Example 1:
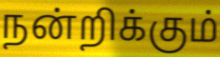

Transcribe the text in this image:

நன்றிக்கும்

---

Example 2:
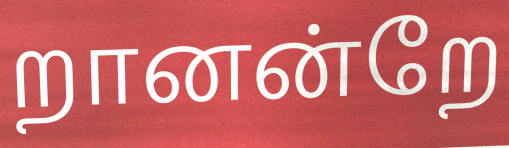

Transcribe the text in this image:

றானன்றே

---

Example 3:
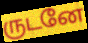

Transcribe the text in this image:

ருடனே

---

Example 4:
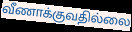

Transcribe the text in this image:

வீணாக்குவதில்லை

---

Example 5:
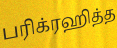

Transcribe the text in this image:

பரிக்ரஹித்த